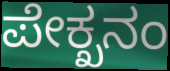
ಪೇಕ್ಖನಂ